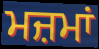
ਮਜ਼ਮਾਂ